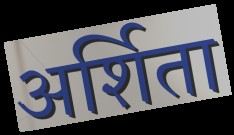
अर्शिता